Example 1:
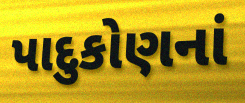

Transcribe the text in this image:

પાદુકોણનાં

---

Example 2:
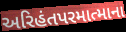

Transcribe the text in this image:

અરિહંતપરમાત્માના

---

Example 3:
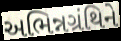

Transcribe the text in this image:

અભિન્નગ્રંથિને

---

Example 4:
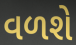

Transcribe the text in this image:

વળશે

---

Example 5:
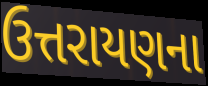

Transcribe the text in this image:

ઉત્તરાયણના